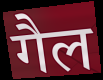
गैल